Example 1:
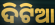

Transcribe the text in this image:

ଦିଟିଆ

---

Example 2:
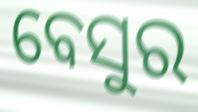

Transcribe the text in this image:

ବେସୁର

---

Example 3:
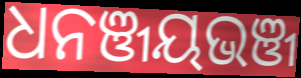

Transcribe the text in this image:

ଧନଞ୍ଜୟଭଞ୍ଜ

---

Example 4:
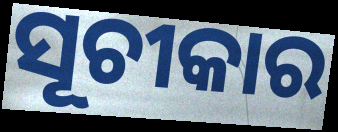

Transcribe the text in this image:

ସୂଚୀକାର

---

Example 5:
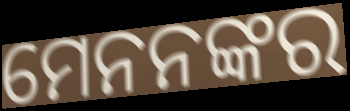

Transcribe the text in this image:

ମେନନଙ୍କର